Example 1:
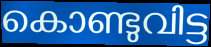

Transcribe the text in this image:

കൊണ്ടുവിട്ട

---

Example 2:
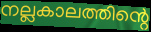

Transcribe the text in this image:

നല്ലകാലത്തിന്റെ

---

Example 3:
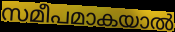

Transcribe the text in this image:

സമീപമാകയാൽ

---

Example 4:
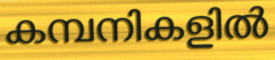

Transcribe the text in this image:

കമ്പനികളിൽ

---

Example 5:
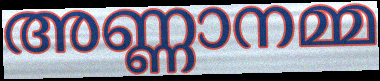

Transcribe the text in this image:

അണ്ണാനമ്മ